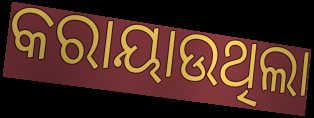
କରାୟାଉଥିଲା